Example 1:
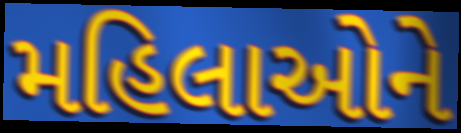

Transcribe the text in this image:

મહિલાઓને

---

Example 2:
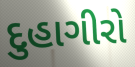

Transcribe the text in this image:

દુહાગીરો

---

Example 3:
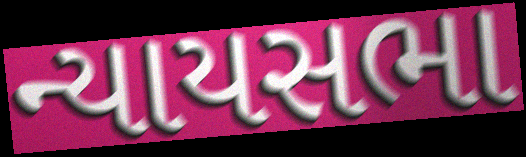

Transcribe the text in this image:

ન્યાયસભા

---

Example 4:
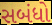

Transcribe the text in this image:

સબંધો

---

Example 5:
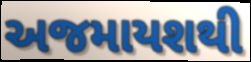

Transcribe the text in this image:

અજમાયશથી